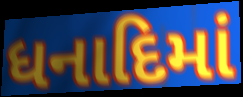
ધનાદિમાં